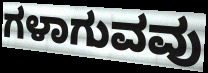
ಗಳಾಗುವವು